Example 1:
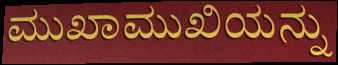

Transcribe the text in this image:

ಮುಖಾಮುಖಿಯನ್ನು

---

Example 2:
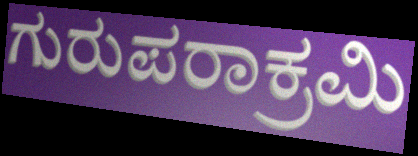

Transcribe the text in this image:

ಗುರುಪರಾಕ್ರಮಿ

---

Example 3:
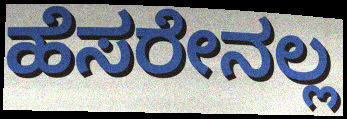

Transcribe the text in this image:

ಹೆಸರೇನಲ್ಲ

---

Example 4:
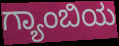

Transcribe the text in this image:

ಗ್ಯಾಂಬಿಯ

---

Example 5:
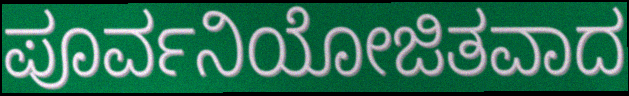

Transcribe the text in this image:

ಪೂರ್ವನಿಯೋಜಿತವಾದ